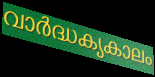
വാർദ്ധക്യകാലം